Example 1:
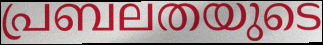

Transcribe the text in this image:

പ്രബലതയുടെ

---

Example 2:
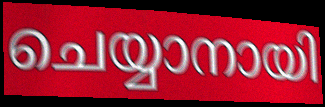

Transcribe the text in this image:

ചെയ്യാനായി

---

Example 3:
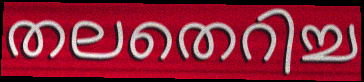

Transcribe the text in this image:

തലതെറിച്ച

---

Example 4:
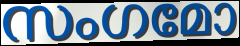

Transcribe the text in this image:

സംഗമോ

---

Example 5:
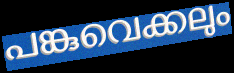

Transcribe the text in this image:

പങ്കുവെക്കലും